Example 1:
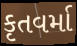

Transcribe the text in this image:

કૃતવર્મા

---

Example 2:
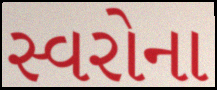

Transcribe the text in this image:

સ્વરોના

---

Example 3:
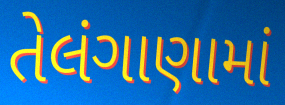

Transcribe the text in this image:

તેલંગાણામાં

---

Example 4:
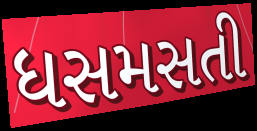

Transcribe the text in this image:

ધસમસતી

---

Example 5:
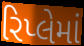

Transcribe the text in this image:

રિપ્લેમાં